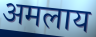
अमलाय